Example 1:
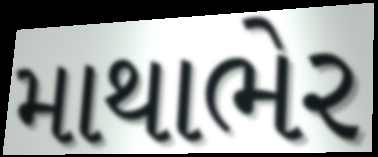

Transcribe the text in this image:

માથાભેર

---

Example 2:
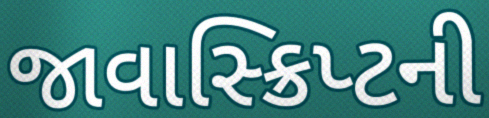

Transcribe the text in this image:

જાવાસ્ક્રિપ્ટની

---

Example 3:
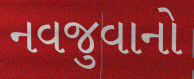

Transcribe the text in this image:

નવજુવાનો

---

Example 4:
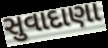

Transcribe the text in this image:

સુવાદાણા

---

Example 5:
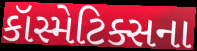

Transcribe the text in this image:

કૉસ્મેટિક્સના